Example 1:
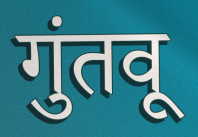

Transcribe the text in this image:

गुंतवू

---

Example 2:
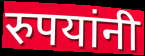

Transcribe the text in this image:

रुपयांनी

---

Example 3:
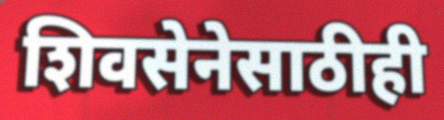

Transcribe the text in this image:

शिवसेनेसाठीही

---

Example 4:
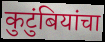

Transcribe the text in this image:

कुटुंबियांचा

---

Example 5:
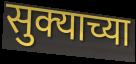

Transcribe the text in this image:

सुक्‍याच्या